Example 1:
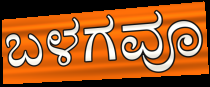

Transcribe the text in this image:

ಬಳಗವೂ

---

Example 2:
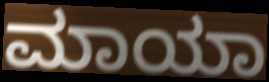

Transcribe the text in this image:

ಮಾಯಾ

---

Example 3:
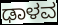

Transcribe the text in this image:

ಢಾಳವ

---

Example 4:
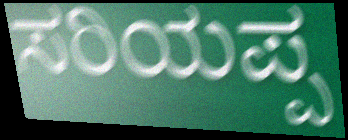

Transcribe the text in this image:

ಸರಿಯಪ್ಪ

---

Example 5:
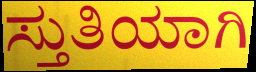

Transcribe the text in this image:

ಸ್ತುತಿಯಾಗಿ